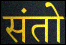
संतो